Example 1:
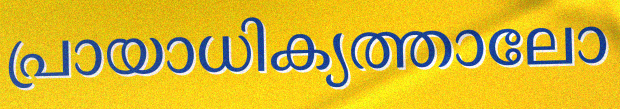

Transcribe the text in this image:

പ്രായാധിക്യത്താലോ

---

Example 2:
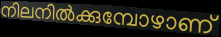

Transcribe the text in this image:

നിലനിൽക്കുമ്പോഴാണ്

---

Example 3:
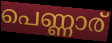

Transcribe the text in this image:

പെണ്ണാര്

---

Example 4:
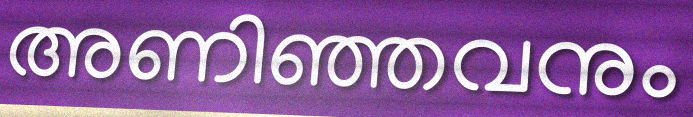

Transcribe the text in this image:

അണിഞ്ഞവനും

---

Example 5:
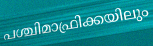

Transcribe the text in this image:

പശ്ചിമാഫ്രിക്കയിലും